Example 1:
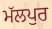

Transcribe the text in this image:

ਮੱਲਪੁਰ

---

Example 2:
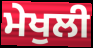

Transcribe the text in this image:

ਮੇਖੁਲੀ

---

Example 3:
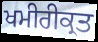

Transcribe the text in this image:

ਖਮੀਰੀਕ੍ਰਤ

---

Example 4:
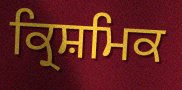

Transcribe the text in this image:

ਕ੍ਰਿਸ਼ਮਿਕ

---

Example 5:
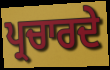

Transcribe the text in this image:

ਪ੍ਰਚਾਰਦੇ